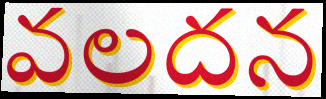
వలదన